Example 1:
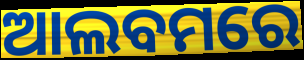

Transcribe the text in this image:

ଆଲବମରେ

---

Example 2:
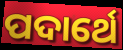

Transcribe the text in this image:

ପଦାର୍ଥେ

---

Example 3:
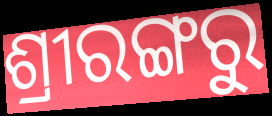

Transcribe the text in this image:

ଶ୍ରୀରଙ୍ଗରୁ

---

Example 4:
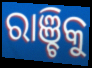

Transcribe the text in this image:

ରାଞ୍ଚିକୁ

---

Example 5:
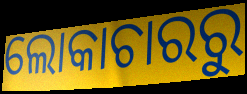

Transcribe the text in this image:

ଲୋକାଚାରରୁ